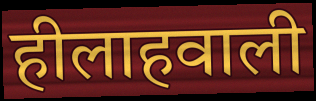
हीलाहवाली